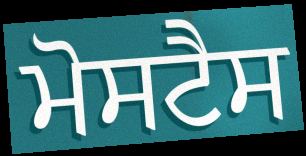
ਮੋਸਟੈਸ